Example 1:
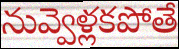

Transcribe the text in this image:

నువ్వెళ్లకపోతే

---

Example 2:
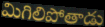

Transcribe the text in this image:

మిగిలిపోతాడు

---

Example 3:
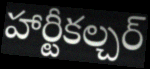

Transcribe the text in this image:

హార్టీకల్చర్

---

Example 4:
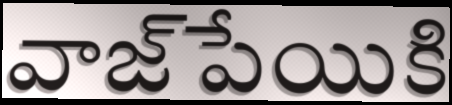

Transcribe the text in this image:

వాజ్‌పేయికి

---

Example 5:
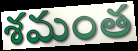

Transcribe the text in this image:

శమంత